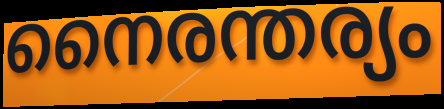
നൈരന്തര്യം